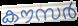
കൗസർ